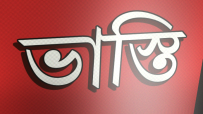
ভাস্তি